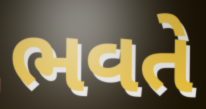
ભવતે